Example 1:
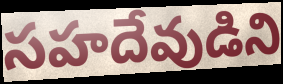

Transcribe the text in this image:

సహదేవుడిని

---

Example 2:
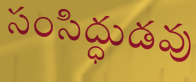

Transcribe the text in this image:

సంసిద్ధుడవు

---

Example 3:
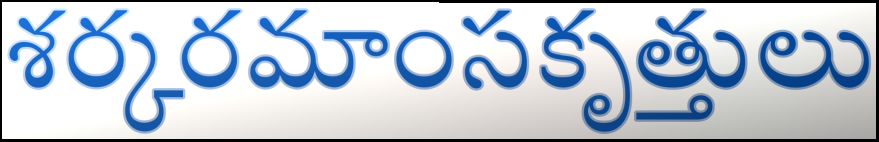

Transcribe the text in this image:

శర్కరమాంసకృత్తులు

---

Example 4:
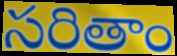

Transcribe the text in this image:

సరితాం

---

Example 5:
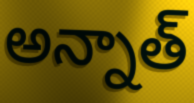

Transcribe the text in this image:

అన్నాత్